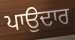
ਪਾਉਦਾਰ